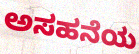
ಅಸಹನೆಯ